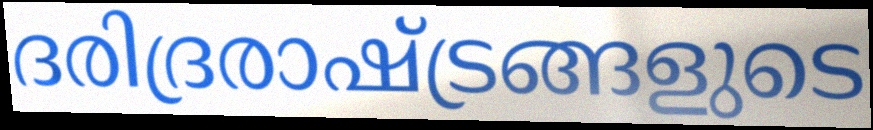
ദരിദ്രരാഷ്ട്രങ്ങളുടെ